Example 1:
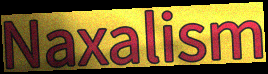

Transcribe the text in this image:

Naxalism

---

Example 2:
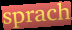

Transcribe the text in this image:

sprach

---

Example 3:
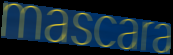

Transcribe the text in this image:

mascara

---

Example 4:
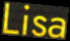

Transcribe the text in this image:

Lisa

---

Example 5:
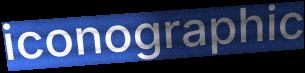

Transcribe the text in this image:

iconographic